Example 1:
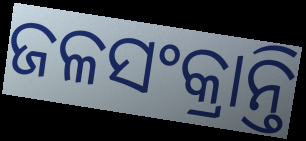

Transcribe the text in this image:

ଜଳସଂକ୍ରାନ୍ତି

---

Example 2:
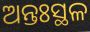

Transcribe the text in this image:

ଅନ୍ତଃସ୍ଥଳ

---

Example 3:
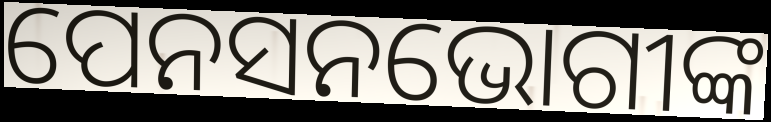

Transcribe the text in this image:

ପେନସନଭୋଗୀଙ୍କ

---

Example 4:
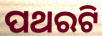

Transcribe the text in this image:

ପଥରଟି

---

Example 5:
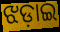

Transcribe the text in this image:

ଝଡ଼ାଇ